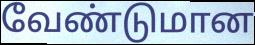
வேண்டுமான